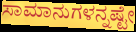
ಸಾಮಾನುಗಳನ್ನಷ್ಟೇ